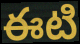
ఈటి